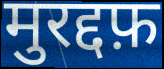
मुरद्दफ़